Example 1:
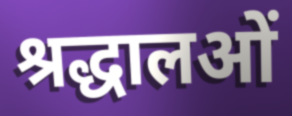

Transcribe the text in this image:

श्रद्धालओं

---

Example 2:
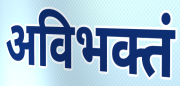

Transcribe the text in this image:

अविभक्तं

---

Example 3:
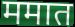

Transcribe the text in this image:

ममात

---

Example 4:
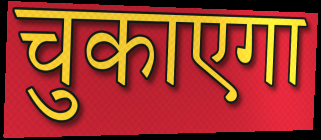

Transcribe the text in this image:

चुकाएगा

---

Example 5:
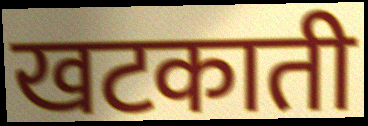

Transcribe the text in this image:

खटकाती